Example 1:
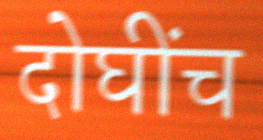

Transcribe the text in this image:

दोघींच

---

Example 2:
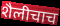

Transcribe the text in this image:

शैलीचाच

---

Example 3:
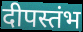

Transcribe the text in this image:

दीपस्तंभ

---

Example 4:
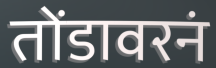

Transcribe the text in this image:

तोंडावरनं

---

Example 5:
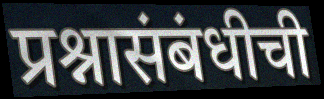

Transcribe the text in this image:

प्रश्नासंबंधीची